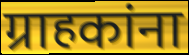
ग्राहकांना